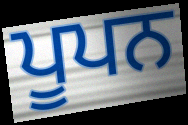
ਪੂਪਨ